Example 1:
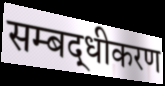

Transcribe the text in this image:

सम्बद्धीकरण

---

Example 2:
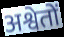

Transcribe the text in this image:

अश्वेतों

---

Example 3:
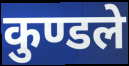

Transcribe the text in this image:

कुण्डले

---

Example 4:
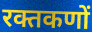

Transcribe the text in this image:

रक्तकणों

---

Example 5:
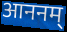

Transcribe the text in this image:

आननम्